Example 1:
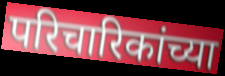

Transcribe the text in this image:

परिचारिकांच्या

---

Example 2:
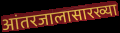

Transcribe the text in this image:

आंतरजालासारख्या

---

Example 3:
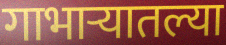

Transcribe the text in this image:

गाभाऱ्यातल्या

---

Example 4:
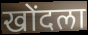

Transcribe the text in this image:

खोंदला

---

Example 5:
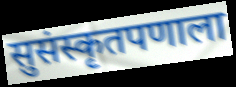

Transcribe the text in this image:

सुसंस्कृतपणाला